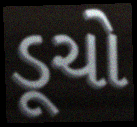
ડૂચો